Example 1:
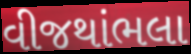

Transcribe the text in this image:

વીજથાંભલા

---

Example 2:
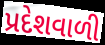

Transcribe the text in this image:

પ્રદેશવાળી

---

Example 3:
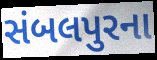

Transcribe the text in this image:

સંબલપુરના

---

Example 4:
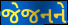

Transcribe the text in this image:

જેજનને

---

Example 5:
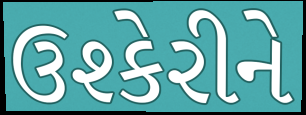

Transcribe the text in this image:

ઉશ્કેરીને